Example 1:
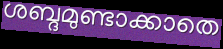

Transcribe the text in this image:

ശബ്ദമുണ്ടാക്കാതെ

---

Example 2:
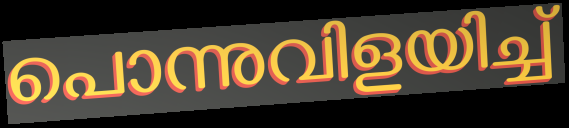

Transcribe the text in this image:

പൊന്നുവിളയിച്ച്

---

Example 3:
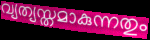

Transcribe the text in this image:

വ്യത്യസ്തമാകുന്നതും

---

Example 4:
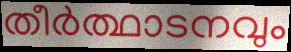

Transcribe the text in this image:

തീർത്ഥാടനവും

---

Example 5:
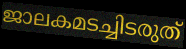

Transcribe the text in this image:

ജാലകമടച്ചിടരുത്